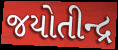
જયોતીન્દ્ર